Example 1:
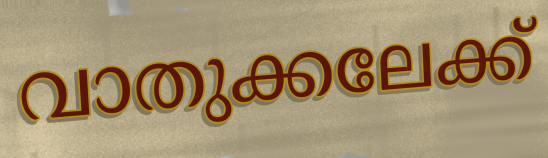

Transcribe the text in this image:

വാതുക്കലേക്ക്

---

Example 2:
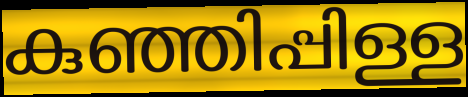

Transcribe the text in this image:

കുഞ്ഞിപ്പിള്ള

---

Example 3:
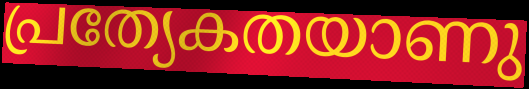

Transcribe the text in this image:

പ്രത്യേകതയാണു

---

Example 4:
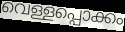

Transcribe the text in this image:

വെള്ളപ്പൊക്കം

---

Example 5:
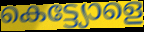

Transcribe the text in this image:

കെട്ട്യോളെ